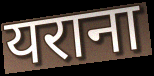
यराना